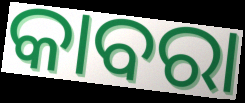
କାବରା